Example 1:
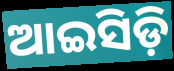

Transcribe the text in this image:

ଆଇସିଡ଼ି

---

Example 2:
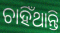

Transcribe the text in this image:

ଚାହିଁଥାନ୍ତି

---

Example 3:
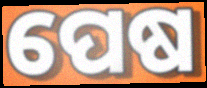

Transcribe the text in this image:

ପେଷ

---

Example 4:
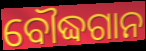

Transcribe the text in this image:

ବୌଦ୍ଧଗାନ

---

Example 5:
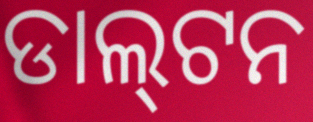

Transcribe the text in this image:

ଡାଲ୍‌ଟନ